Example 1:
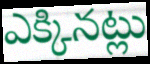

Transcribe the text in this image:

ఎక్కినట్లు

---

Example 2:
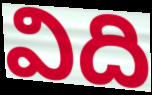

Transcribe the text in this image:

విది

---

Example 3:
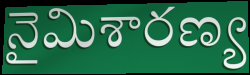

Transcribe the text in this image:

నైమిశారణ్య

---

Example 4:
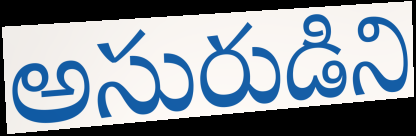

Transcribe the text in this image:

అసురుడిని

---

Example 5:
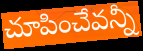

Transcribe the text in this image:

చూపించేవన్నీ